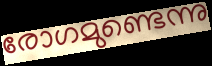
രോഗമുണ്ടെന്നു